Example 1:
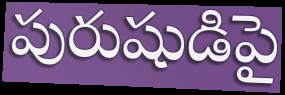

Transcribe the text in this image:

పురుషుడిపై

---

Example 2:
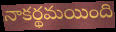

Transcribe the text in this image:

నాకర్థమయింది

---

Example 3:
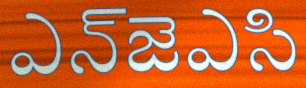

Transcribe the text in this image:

ఎన్‌జెఎసి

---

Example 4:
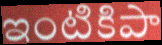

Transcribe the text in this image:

ఇంటికిపా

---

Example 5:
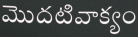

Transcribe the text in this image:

మొదటివాక్యం